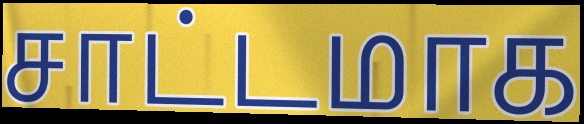
சாட்டமாக